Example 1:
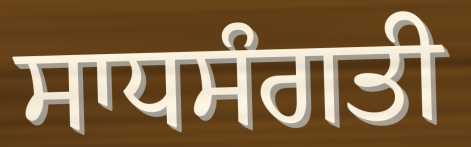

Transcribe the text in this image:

ਸਾਧਸੰਗਤੀ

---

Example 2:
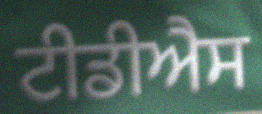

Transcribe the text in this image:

ਟੀਡੀਐਸ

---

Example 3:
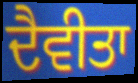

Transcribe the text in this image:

ਦੈਵੀਤਾ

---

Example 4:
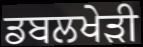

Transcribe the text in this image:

ਡਬਲਖੇੜੀ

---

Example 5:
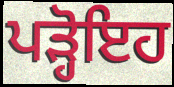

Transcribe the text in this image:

ਪੜ੍ਹੋਇਹ